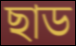
ছাড